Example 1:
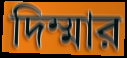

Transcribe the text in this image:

দিম্মার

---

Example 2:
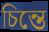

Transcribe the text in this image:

চিন্তে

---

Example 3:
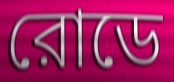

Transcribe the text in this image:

রোডে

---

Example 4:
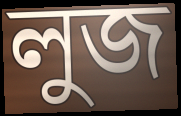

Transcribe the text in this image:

লুজ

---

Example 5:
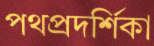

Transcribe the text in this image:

পথপ্রদর্শিকা